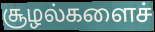
சூழல்களைச்